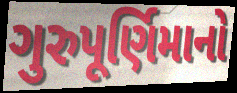
ગુરુપૂર્ણિમાનો